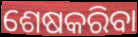
ଶେଷକରିବା